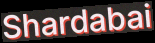
Shardabai